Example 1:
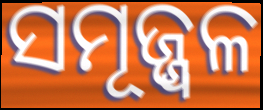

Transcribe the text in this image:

ସମୂଜ୍ଜ୍ୱଳ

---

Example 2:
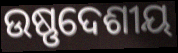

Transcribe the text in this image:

ଉଷ୍ଣଦେଶୀୟ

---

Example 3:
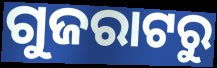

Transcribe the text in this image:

ଗୁଜରାଟରୁ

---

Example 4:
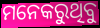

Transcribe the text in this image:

ମନେକରୁଥିବୁ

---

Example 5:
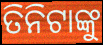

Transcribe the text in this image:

ତିନିଟାଙ୍କୁ